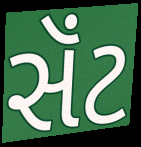
સૅંટ